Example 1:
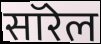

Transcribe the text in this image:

सॉरेल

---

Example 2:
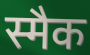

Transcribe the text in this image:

स्मैक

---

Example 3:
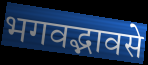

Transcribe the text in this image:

भगवद्भावसे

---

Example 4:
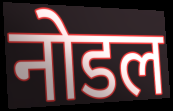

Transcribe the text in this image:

नोडल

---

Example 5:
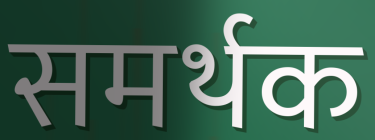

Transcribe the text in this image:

समर्थक